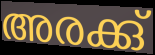
അരക്കു്